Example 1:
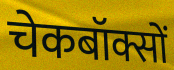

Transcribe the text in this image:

चेकबॉक्सों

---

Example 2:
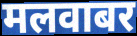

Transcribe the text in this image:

मलवाबर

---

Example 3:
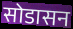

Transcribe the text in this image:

सोडासन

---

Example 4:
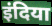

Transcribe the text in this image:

इंदिया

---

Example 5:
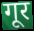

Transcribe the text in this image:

गूर